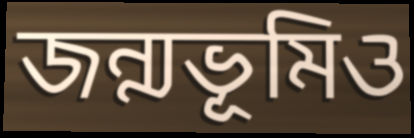
জন্মভূমিও